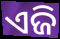
ଏଜି